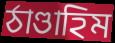
ঠাণ্ডাহিম